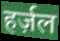
हर्ज़ल